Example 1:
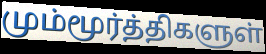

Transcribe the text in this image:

மும்மூர்த்திகளுள்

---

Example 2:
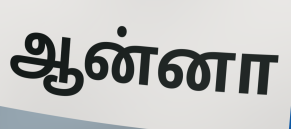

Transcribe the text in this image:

ஆன்னா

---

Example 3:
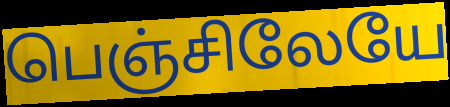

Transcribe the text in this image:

பெஞ்சிலேயே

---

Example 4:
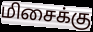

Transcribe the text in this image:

மிசைக்கு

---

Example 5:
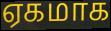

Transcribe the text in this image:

ஏகமாக